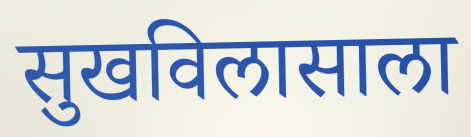
सुखविलासाला